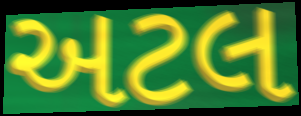
અટલ